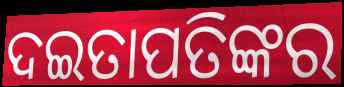
ଦଇତାପତିଙ୍କର